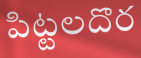
పిట్టలదొర